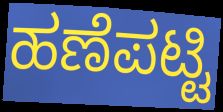
ಹಣೆಪಟ್ಟಿ